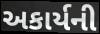
અકાર્યની